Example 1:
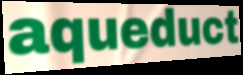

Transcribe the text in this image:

aqueduct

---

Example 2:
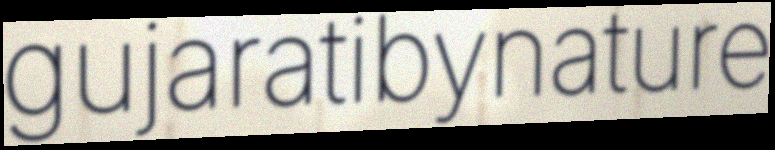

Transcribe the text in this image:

gujaratibynature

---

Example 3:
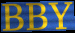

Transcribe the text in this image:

BBY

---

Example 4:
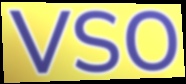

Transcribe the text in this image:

VSO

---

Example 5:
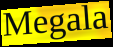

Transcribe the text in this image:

Megala